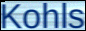
Kohls